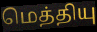
மெத்தியு